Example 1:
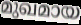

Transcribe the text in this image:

മുഖമായ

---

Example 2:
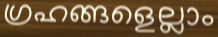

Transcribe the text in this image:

ഗ്രഹങ്ങളെല്ലാം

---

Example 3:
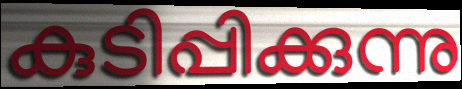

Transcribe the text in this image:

കുടിപ്പിക്കുന്നു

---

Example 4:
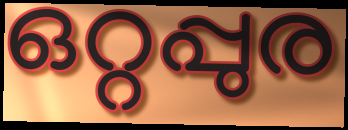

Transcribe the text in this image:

ഒറ്റപ്പുര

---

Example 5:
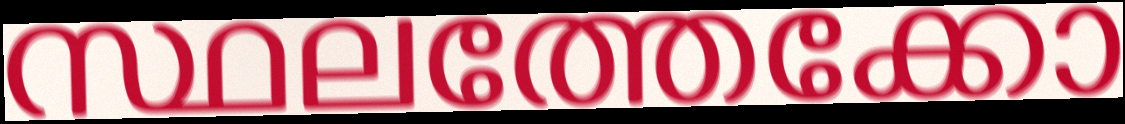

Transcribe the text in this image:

സ്ഥലത്തേക്കോ